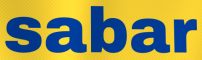
sabar